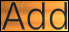
Add